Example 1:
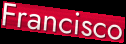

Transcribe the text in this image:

Francisco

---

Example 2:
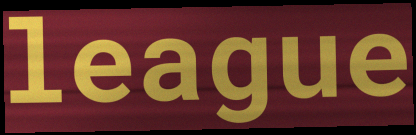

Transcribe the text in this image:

league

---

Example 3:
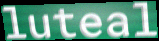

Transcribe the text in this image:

luteal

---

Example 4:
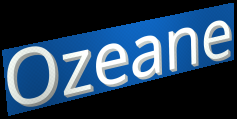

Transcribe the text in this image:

Ozeane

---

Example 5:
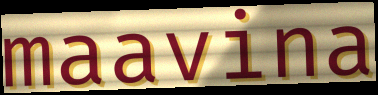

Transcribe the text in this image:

maavina